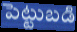
పెట్టుబడి